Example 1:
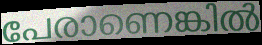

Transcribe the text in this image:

പേരാണെങ്കിൽ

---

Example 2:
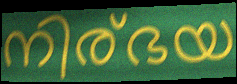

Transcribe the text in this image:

നിര്ഭയ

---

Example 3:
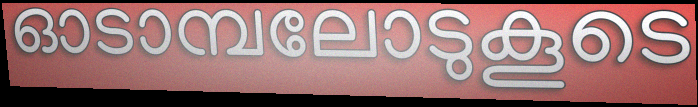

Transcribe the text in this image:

ഓടാമ്പലോടുകൂടെ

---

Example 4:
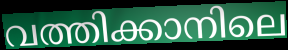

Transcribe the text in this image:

വത്തിക്കാനിലെ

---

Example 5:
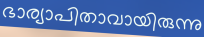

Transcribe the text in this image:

ഭാര്യാപിതാവായിരുന്നു